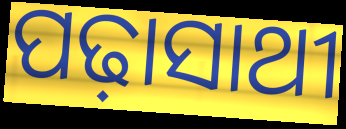
ପଢ଼ାସାଥୀ